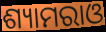
ଶ୍ୟାମରାଓ